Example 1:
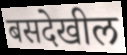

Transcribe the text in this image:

बसदेखील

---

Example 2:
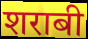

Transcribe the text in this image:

शराबी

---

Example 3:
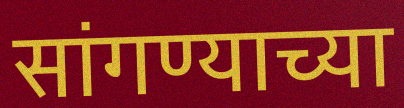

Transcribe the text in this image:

सांगण्याच्या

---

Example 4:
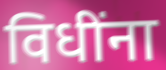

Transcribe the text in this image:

विधींना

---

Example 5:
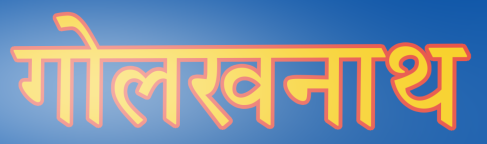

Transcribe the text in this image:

गोलखनाथ